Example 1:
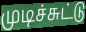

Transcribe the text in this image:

முடிச்சுட்டு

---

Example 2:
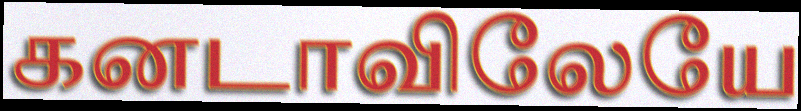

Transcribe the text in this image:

கனடாவிலேயே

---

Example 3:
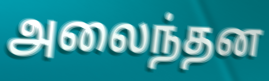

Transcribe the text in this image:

அலைந்தன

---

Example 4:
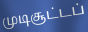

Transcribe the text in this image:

முடிசூட்டப்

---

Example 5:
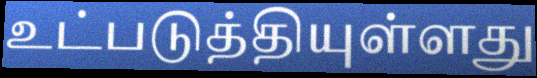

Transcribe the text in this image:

உட்படுத்தியுள்ளது